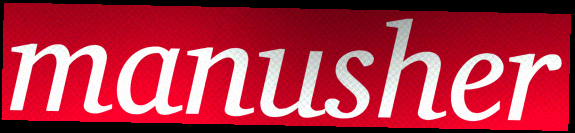
manusher